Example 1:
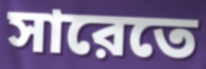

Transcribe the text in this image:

সারেতে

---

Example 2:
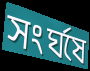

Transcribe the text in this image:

সংর্ঘষে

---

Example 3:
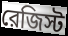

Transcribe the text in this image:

রেজিস্ট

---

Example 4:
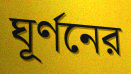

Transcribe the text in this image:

ঘূর্ণনের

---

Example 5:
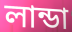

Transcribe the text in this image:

লান্ডা